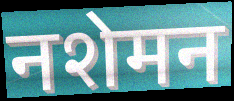
नशेमन